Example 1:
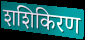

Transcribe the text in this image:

शशिकिरण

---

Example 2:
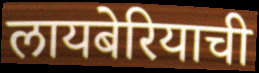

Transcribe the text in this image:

लायबेरियाची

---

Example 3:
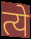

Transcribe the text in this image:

त्ये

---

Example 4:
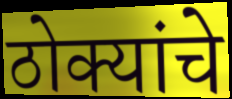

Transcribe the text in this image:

ठोक्यांचे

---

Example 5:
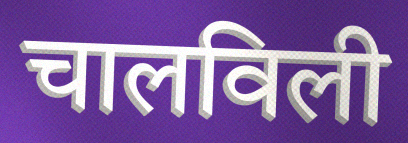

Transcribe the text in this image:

चालविली